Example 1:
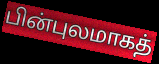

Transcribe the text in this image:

பின்புலமாகத்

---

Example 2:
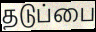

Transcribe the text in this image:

தடுப்பை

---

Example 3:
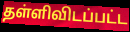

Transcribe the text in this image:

தள்ளிவிடப்பட்ட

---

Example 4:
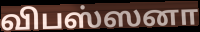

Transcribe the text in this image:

விபஸ்ஸனா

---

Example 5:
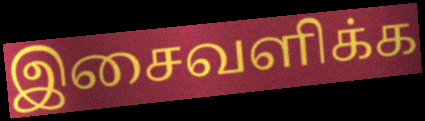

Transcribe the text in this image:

இசைவளிக்க